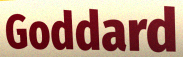
Goddard